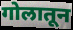
गोलातून